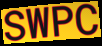
SWPC